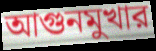
আগুনমুখার